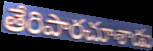
తేరిపారచూశాడు